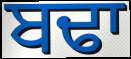
ਬਢਾ